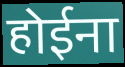
होईना